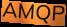
AMQP